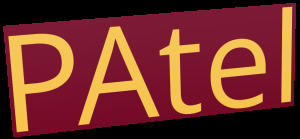
PAtel